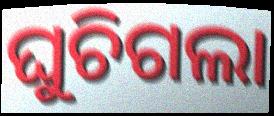
ଘୁଚିଗଲା